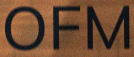
OFM